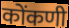
कोंकणी